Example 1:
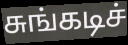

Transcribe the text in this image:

சுங்கடிச்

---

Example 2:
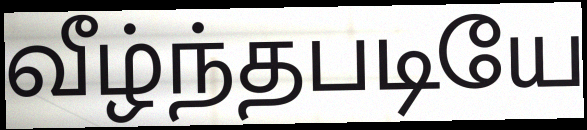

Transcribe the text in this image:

வீழ்ந்தபடியே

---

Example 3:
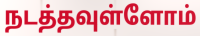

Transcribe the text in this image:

நடத்தவுள்ளோம்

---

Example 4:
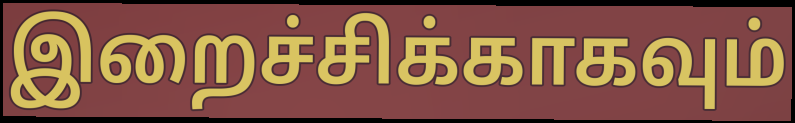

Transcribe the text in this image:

இறைச்சிக்காகவும்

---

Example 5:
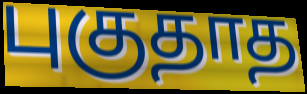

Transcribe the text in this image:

புகுதாத